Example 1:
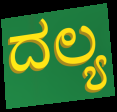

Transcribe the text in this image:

ದಲ್ಯ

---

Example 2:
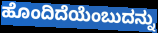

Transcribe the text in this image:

ಹೊಂದಿದೆಯೆಂಬುದನ್ನು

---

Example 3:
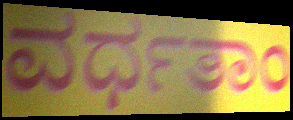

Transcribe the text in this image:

ವರ್ಧತಾಂ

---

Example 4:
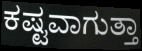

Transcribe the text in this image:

ಕಷ್ಟವಾಗುತ್ತಾ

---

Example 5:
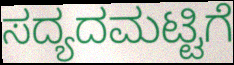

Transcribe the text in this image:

ಸದ್ಯದಮಟ್ಟಿಗೆ